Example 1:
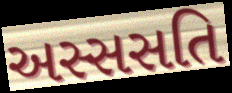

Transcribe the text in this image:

અસ્સસતિ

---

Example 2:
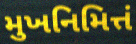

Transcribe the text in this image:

મુખનિમિત્તં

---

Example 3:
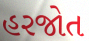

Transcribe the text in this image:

હરજોત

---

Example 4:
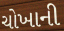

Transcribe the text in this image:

ચોખાની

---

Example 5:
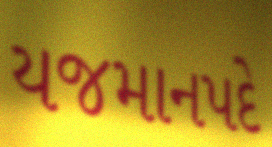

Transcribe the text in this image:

યજમાનપદે